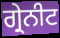
ਗ੍ਰੇਨੀਟ